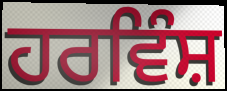
ਹਰਵਿੰਸ਼